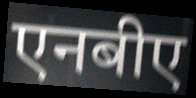
एनबीए